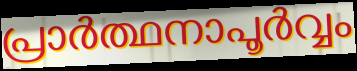
പ്രാർത്ഥനാപൂർവ്വം